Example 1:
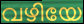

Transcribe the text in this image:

വഴിയേ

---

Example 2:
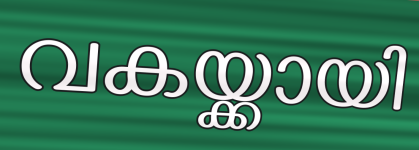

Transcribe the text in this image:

വകയ്ക്കായി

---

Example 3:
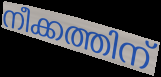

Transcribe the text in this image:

നീക്കത്തിന്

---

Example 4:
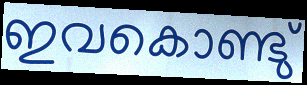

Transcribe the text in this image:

ഇവകൊണ്ടു്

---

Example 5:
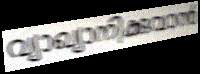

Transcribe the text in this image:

വ്യാഖ്യാനിക്കുവാൻ